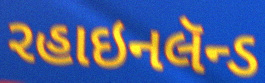
રહાઇનલૅન્ડ